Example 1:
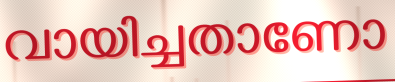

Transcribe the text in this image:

വായിച്ചതാണോ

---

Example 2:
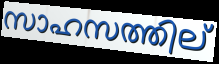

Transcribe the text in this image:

സാഹസത്തില്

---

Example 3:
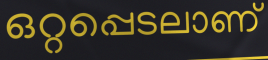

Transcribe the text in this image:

ഒറ്റപ്പെടലാണ്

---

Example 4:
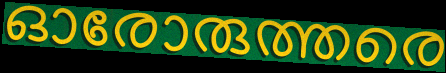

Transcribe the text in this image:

ഓരോരുത്തരെ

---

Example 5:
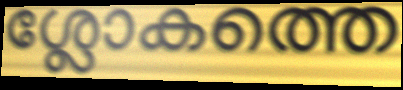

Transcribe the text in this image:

ശ്ലോകത്തെ